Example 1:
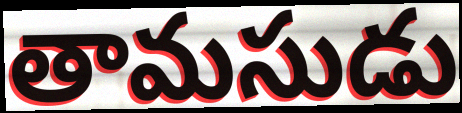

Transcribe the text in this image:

తామసుడు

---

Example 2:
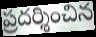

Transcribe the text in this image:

ప్రదర్శించిన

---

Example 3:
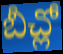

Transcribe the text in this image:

బీచ్లో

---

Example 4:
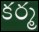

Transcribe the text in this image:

కర్మ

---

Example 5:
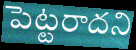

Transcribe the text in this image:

పెట్టరాదని